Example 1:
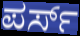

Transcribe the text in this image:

ಪರ್ಸ್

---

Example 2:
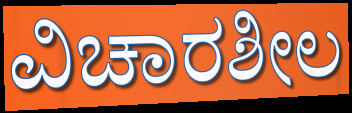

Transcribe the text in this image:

ವಿಚಾರಶೀಲ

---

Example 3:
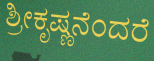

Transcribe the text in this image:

ಶ್ರೀಕೃಷ್ಣನೆಂದರೆ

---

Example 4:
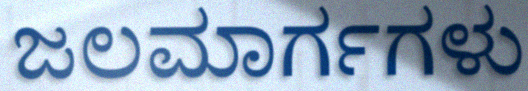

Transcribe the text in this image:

ಜಲಮಾರ್ಗಗಳು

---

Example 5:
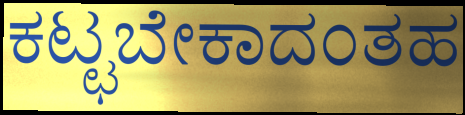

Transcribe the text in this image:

ಕಟ್ಟಬೇಕಾದಂತಹ